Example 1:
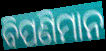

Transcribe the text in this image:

ବିପଣିମାନ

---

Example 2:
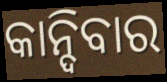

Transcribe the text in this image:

କାନ୍ଦିବାର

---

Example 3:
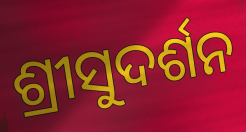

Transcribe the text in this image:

ଶ୍ରୀସୁଦର୍ଶନ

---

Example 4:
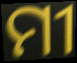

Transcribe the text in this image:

ମୀ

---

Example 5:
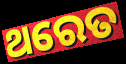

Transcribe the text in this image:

ଥରେତ